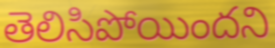
తెలిసిపోయిందని